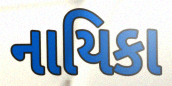
નાયિકા